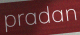
pradan